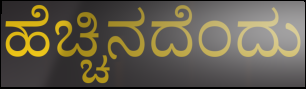
ಹೆಚ್ಚಿನದೆಂದು